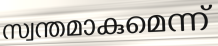
സ്വന്തമാകുമെന്ന്